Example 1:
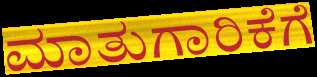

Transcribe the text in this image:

ಮಾತುಗಾರಿಕೆಗೆ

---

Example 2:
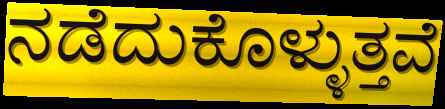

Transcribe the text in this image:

ನಡೆದುಕೊಳ್ಳುತ್ತವೆ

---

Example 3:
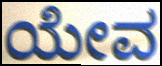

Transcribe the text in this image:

ಯೇವ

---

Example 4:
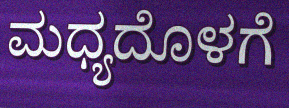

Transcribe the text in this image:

ಮಧ್ಯದೊಳಗೆ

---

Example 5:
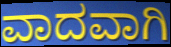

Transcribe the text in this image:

ವಾದವಾಗಿ